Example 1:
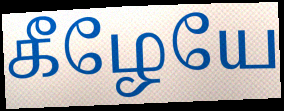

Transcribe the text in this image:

கீழேயே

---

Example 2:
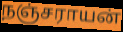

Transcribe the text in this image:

நஞ்சராயன்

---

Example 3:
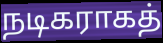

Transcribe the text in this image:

நடிகராகத்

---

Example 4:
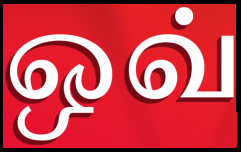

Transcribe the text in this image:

ஒவ்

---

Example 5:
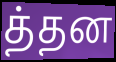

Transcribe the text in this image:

த்தன